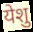
येशु